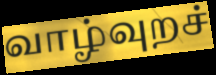
வாழ்வுறச்